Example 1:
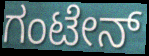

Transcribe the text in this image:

ಗಂಟೇನ್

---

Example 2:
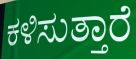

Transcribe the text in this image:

ಕಳಿಸುತ್ತಾರೆ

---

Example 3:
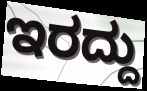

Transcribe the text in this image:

ಇರದ್ದು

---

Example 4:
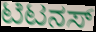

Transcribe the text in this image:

ಟೆಟನಸ್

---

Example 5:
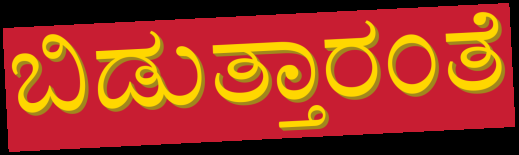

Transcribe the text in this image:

ಬಿಡುತ್ತಾರಂತೆ